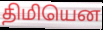
திமியென